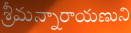
శ్రీమన్నారాయణుని